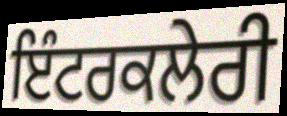
ਇੰਟਰਕਲੇਰੀ